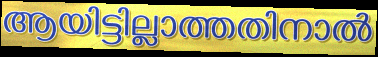
ആയിട്ടില്ലാത്തതിനാൽ